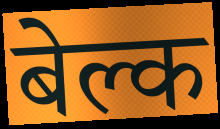
बेल्क